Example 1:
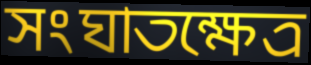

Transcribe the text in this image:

সংঘাতক্ষেত্র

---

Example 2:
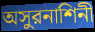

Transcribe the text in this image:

অসুরনাশিনী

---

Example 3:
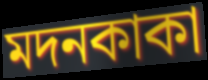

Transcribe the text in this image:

মদনকাকা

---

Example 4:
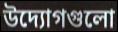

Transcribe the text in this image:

উদ্যোগগুলো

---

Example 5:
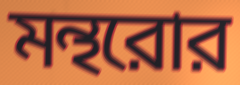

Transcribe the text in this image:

মন্থরোর